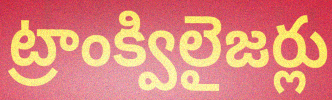
ట్రాంక్విలైజర్లు